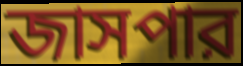
জাসপার